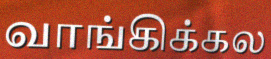
வாங்கிக்கல